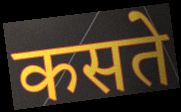
कसते